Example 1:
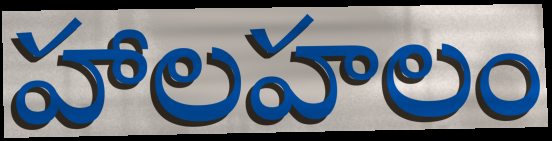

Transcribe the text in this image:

హాలహలం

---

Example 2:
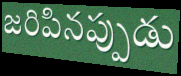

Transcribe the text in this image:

జరిపినప్పుడు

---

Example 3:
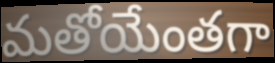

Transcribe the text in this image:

మతోయేంతగా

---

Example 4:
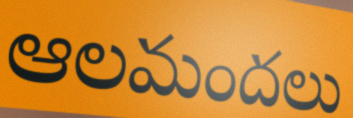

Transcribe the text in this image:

ఆలమందలు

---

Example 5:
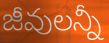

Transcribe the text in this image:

జీవులన్నీ